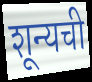
शून्यची